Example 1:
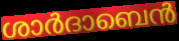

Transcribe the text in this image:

ശാർദാബെൻ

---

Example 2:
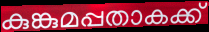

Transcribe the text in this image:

കുങ്കുമപ്പതാകക്ക്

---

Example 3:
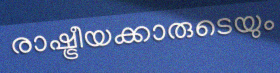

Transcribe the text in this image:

രാഷ്ട്രീയക്കാരുടെയും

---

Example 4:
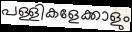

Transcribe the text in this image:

പള്ളികളേക്കാളും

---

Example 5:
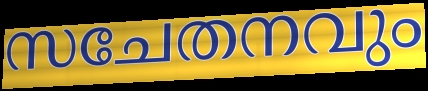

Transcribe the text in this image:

സചേതനവും